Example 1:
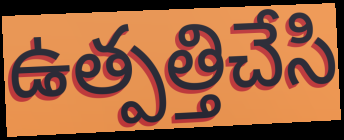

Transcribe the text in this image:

ఉత్పత్తిచేసి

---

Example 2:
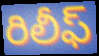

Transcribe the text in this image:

రిలీఫ్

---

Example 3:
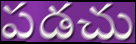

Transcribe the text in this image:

పడచు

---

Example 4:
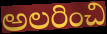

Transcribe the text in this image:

అలరించి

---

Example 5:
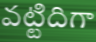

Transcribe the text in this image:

వట్టిదిగా